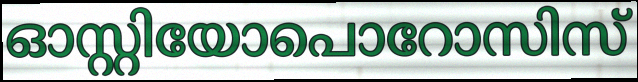
ഓസ്റ്റിയോപൊറോസിസ്